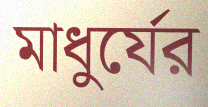
মাধুর্যের